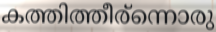
കത്തിത്തീര്ന്നൊരു